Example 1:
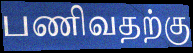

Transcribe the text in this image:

பணிவதற்கு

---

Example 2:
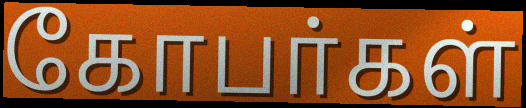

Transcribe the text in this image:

கோபர்கள்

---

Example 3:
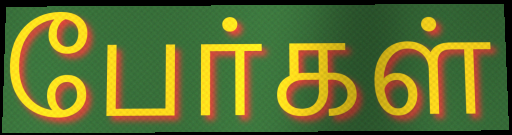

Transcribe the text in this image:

பேர்கள்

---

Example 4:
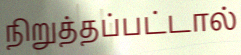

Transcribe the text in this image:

நிறுத்தப்பட்டால்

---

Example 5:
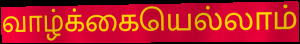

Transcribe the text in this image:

வாழ்க்கையெல்லாம்